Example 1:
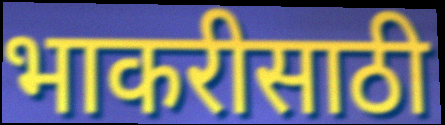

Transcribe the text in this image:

भाकरीसाठी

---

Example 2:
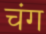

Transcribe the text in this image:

चंग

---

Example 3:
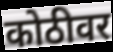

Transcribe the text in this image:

कोठीवर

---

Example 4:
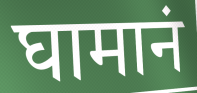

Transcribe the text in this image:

घामानं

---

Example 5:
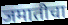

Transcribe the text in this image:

जमातीचा